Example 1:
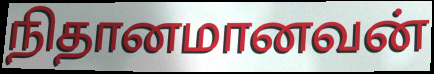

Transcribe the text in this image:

நிதானமானவன்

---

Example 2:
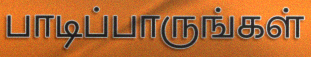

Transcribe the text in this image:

பாடிப்பாருங்கள்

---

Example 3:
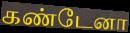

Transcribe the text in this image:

கண்டேனா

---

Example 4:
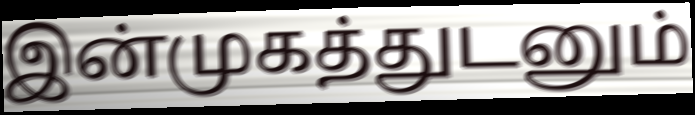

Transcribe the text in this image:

இன்முகத்துடனும்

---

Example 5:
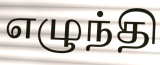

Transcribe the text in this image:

எழுந்தி